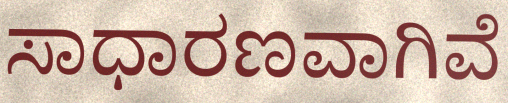
ಸಾಧಾರಣವಾಗಿವೆ